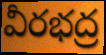
వీరభద్ర